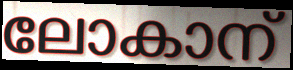
ലോകാന്